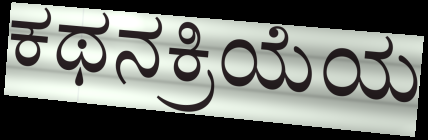
ಕಥನಕ್ರಿಯೆಯ